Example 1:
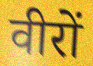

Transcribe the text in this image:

वीरों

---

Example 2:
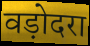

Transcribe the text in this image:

वड़ोदरा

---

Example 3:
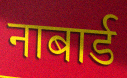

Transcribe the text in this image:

नाबार्ड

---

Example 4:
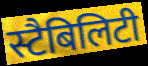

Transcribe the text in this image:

स्टैबिलिटी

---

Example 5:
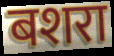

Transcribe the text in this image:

बशरा